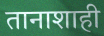
तानाशाही